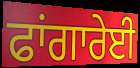
ਫਾਂਗਾਰੇਈ